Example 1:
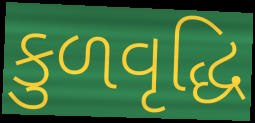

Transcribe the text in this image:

કુળવૃદ્ધિ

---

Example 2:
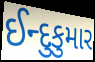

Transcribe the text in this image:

ઈન્દુકુમાર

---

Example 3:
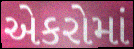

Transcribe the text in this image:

એકરોમાં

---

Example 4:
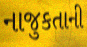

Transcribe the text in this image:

નાજુકતાની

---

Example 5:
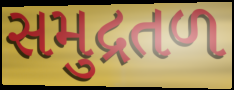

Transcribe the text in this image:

સમુદ્રતળ